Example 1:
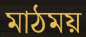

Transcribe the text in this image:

মাঠময়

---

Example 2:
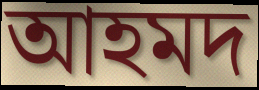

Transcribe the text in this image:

আহমদ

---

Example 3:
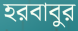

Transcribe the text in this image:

হরবাবুর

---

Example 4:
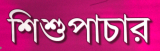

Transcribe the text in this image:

শিশুপাচার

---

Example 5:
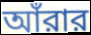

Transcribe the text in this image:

আঁরার